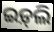
ଇଡ଼୍‌ଲି